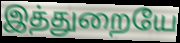
இத்துறையே